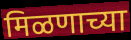
मिळणाच्या